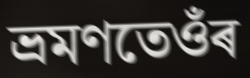
ভ্ৰমণতেওঁৰ